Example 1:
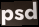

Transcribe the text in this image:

psd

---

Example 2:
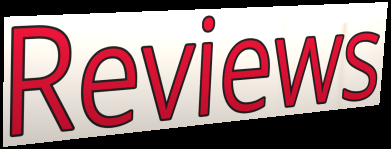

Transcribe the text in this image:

Reviews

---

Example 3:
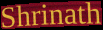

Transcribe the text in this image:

Shrinath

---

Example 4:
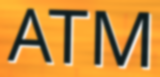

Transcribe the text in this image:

ATM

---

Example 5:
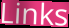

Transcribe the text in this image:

Links